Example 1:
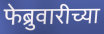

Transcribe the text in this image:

फेब्रुवारीच्या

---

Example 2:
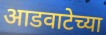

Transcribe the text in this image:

आडवाटेच्या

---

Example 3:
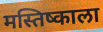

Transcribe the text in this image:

मस्तिष्काला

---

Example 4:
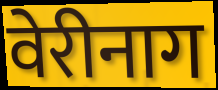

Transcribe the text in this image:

वेरीनाग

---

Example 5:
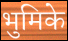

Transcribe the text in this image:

भुमिके